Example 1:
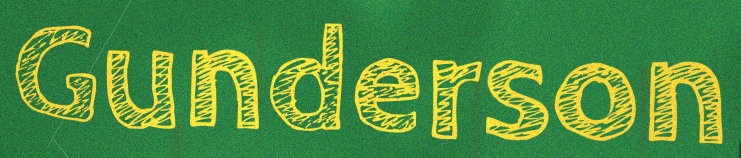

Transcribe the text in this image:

Gunderson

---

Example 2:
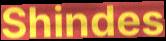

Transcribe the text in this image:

Shindes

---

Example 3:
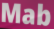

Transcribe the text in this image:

Mab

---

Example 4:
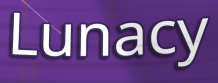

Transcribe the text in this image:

Lunacy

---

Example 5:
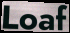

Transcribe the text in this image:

Loaf